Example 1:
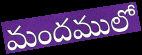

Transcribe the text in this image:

మందములో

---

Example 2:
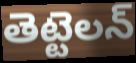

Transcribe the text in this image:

తెట్టెలన్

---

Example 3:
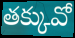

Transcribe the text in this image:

తక్కువో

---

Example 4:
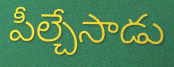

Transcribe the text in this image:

పీల్చేసాడు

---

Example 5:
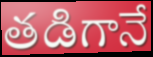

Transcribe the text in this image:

తడిగానే